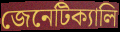
জেনেটিক্যালি